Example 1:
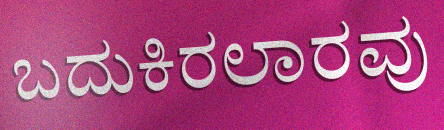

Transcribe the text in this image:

ಬದುಕಿರಲಾರವು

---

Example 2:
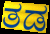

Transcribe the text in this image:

ತಡ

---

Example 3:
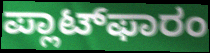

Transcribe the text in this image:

ಪ್ಲಾಟ್‌ಫಾರಂ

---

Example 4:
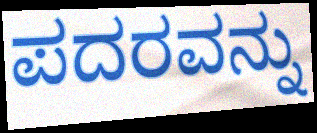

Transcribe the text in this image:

ಪದರವನ್ನು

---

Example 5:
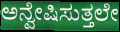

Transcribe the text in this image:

ಅನ್ವೇಷಿಸುತ್ತಲೇ